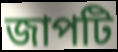
জাপটি